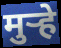
मुऱ्हे